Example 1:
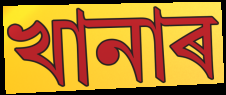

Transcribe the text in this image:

খানাৰ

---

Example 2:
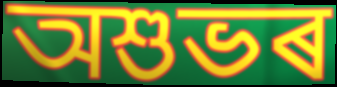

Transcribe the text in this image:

অশুভৰ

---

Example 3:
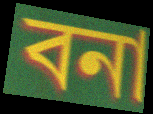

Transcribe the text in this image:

বনা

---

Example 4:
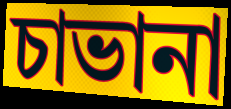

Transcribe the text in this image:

চাভানা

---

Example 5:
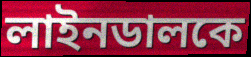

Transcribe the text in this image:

লাইনডালকে